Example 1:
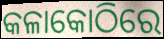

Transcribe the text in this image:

କଳାକୋଠିରେ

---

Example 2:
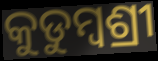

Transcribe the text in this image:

କୁଡୁମ୍ବଶ୍ରୀ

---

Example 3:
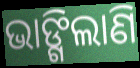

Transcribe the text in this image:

ଭାଙ୍ଗିଲାଣି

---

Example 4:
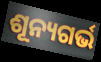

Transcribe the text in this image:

ଶୂନ୍ୟଗର୍ଭ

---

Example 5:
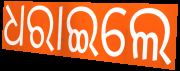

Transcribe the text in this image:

ଧରାଇଲେ